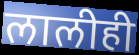
लालीही